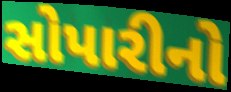
સોપારીનો